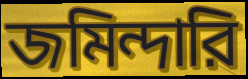
জমিন্দারি